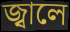
জ্বালে